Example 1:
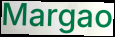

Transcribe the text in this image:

Margao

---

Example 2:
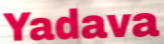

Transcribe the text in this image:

Yadava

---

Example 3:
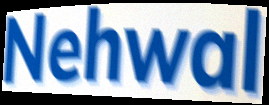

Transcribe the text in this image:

Nehwal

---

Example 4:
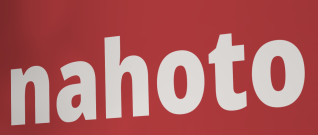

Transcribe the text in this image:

nahoto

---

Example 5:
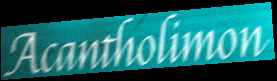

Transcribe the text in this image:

Acantholimon